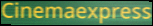
Cinemaexpress